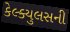
કેલ્ક્યુલસની